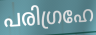
പരിഗ്രഹേ